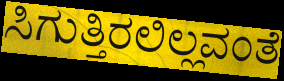
ಸಿಗುತ್ತಿರಲಿಲ್ಲವಂತೆ